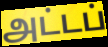
அட்டப்